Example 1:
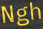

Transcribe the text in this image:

Ngh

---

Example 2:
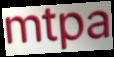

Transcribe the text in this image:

mtpa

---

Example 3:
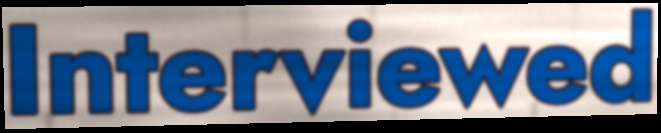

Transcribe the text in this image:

Interviewed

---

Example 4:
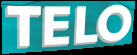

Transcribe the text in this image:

TELO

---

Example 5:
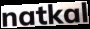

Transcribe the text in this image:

natkal